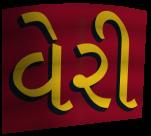
વેરી